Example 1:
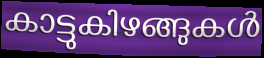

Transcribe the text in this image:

കാട്ടുകിഴങ്ങുകൾ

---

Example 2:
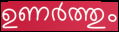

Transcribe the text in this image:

ഉണർത്തും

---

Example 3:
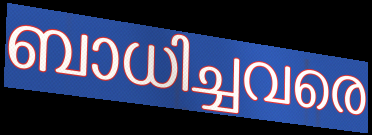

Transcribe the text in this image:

ബാധിച്ചവരെ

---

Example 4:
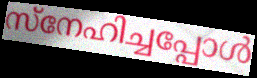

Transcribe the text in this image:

സ്നേഹിച്ചപ്പോൾ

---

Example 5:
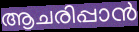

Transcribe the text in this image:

ആചരിപ്പാൻ